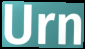
Urn